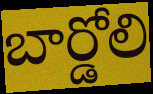
బార్డోలి